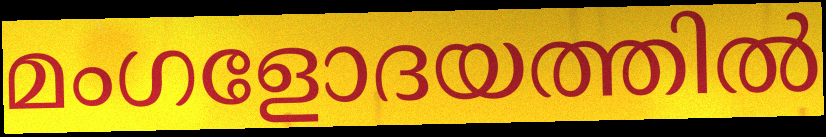
മംഗളോദയത്തിൽ